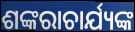
ଶଙ୍କରାଚାର୍ଯ୍ୟଙ୍କ